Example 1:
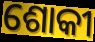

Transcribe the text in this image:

ଶୋକୀ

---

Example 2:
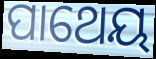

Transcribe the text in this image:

ପାଥେୟ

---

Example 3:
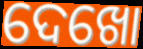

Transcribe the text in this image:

ଦେଖୋ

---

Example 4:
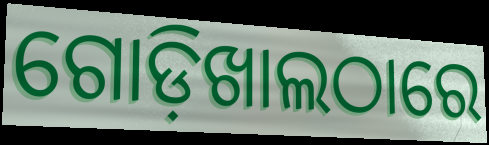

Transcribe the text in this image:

ଗୋଡ଼ିଖାଲଠାରେ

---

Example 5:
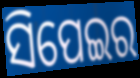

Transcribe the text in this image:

ସିପେଇର